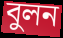
বুলন